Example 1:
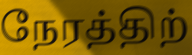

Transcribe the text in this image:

நேரத்திற்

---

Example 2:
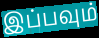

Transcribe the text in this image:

இப்பவும்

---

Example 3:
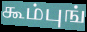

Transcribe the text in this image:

கூம்புங்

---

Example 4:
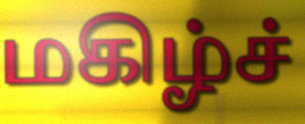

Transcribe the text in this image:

மகிழ்ச்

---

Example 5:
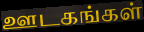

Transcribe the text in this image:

ஊடகங்கள்